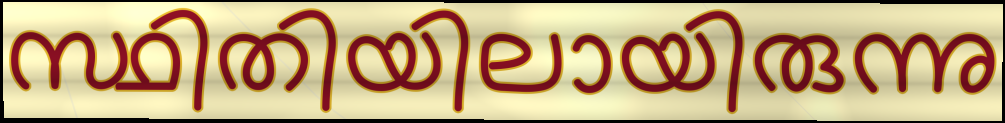
സ്ഥിതിയിലായിരുന്നു